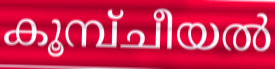
കൂമ്പ്ചീയൽ